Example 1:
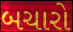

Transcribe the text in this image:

બચારો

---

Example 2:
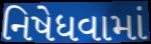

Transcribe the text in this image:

નિષેધવામાં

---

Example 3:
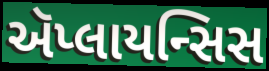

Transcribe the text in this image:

ઍપ્લાયન્સિસ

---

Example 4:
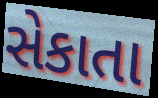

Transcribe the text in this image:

સેકાતા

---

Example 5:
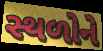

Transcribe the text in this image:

સ્થળોને